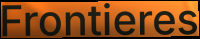
Frontieres